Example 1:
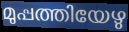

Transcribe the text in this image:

മുപ്പത്തിയേഴു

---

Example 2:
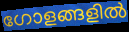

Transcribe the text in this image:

ഗോളങ്ങളിൽ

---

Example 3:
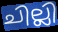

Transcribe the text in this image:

ചില്ലി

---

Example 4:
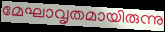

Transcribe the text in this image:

മേഘാവൃതമായിരുന്നു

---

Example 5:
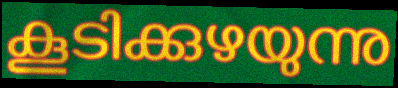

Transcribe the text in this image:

കൂടിക്കുഴയുന്നു